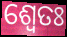
ଶ୍ଵେତଃ